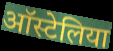
ऑस्टेलिया